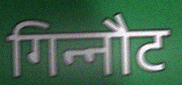
गिन्नौट